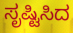
ಸೃಷ್ಟಿಸಿದ